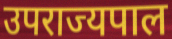
उपराज्यपाल